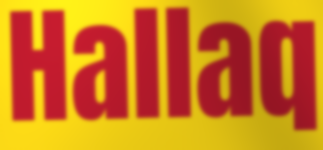
Hallaq